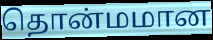
தொன்மமான